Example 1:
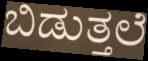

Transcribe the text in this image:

ಬಿಡುತ್ತಲೆ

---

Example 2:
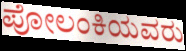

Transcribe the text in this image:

ಪೋಲಂಕಿಯವರು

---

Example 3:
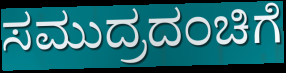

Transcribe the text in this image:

ಸಮುದ್ರದಂಚಿಗೆ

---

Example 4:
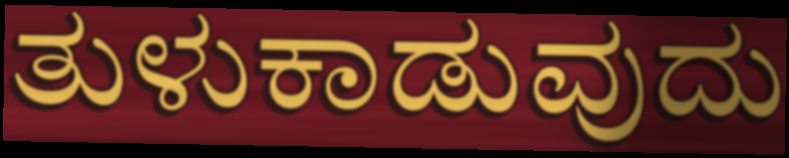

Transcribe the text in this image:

ತುಳುಕಾಡುವುದು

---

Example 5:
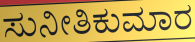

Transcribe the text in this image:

ಸುನೀತಿಕುಮಾರ